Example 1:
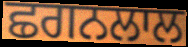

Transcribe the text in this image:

ਛਗਨਲਾਲ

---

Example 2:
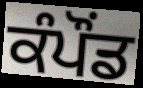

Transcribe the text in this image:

ਕੰਪੌਂਡ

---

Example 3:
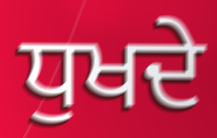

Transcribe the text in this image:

ਧੁਖਦੇ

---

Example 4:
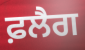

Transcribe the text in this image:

ਫ਼ਲੈਗ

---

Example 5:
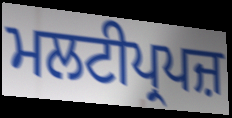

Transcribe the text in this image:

ਮਲਟੀਪ੍ਰਪਜ਼